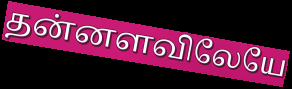
தன்னளவிலேயே